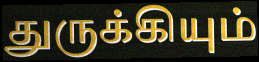
துருக்கியும்